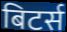
बिटर्स